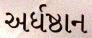
અર્ધષ્ઠાન